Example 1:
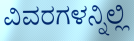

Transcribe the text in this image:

ವಿವರಗಳನ್ನಿಲ್ಲಿ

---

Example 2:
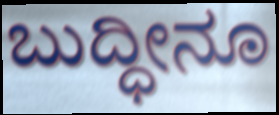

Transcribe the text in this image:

ಬುದ್ಧೀನೂ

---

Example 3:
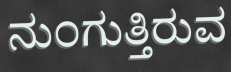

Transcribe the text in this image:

ನುಂಗುತ್ತಿರುವ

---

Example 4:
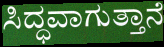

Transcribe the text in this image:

ಸಿದ್ಧವಾಗುತ್ತಾನೆ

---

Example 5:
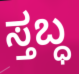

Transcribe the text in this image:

ಸ್ತಬ್ಧ